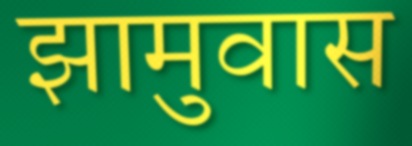
झामुवास